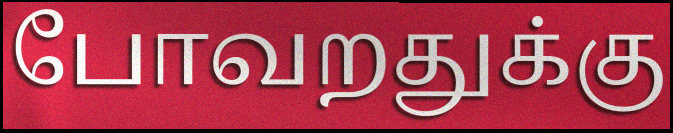
போவறதுக்கு